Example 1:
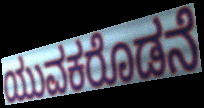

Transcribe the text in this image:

ಯುವಕರೊಡನೆ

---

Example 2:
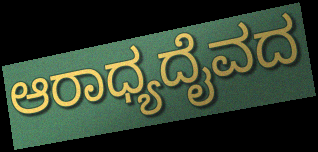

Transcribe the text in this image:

ಆರಾಧ್ಯದೈವದ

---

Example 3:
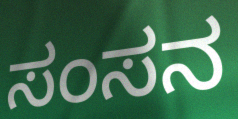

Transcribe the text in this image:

ಸಂಸನ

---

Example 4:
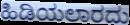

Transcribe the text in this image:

ಹಿಡಿಯಲಾರದು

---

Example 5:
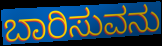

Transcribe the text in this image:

ಬಾರಿಸುವನು